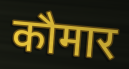
कौमार